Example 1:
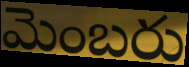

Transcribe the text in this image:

మెంబరు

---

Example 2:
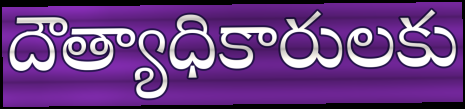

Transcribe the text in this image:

దౌత్యాధికారులకు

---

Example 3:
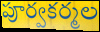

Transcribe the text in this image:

పూర్వకర్మల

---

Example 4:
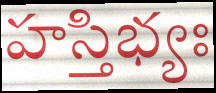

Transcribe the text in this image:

హస్తిభ్యః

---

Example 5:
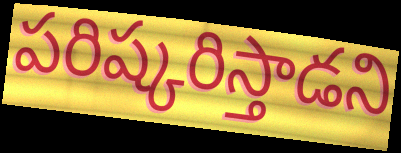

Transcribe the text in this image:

పరిష్కరిస్తాడని